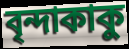
বৃন্দাকাকু